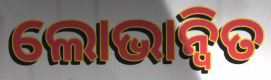
ଲୋଭାନ୍ୱିତ